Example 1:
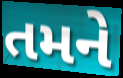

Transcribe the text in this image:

તમને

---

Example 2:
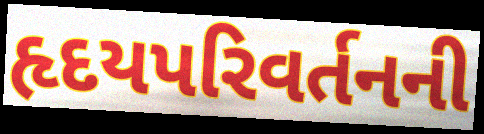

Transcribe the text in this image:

હૃદયપરિવર્તનની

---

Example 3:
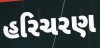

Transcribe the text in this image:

હરિચરણ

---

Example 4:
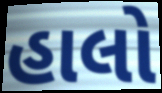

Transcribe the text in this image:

હાલો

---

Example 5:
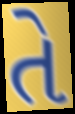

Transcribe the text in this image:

તે